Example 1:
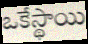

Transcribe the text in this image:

ఒకేస్థాయి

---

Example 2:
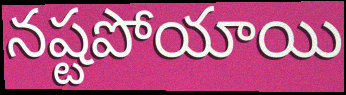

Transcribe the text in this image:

నష్టపోయాయి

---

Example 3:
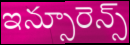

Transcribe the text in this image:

ఇన్సూరెన్స్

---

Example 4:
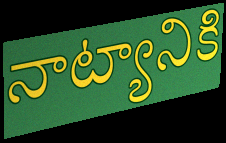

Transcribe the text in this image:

నాట్యానికి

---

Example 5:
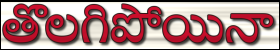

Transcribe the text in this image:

తొలగిపోయినా